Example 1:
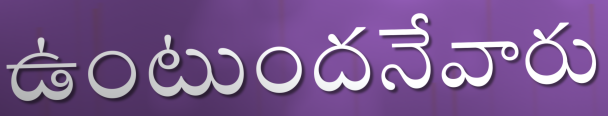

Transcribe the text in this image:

ఉంటుందనేవారు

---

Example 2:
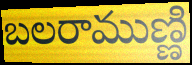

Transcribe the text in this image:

బలరాముణ్ణి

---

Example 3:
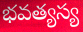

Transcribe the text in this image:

భవత్యస్య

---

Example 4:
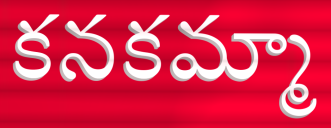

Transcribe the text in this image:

కనకమ్మా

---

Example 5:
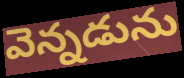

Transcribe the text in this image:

వెన్నడును